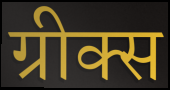
ग्रीक्स